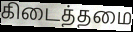
கிடைத்தமை